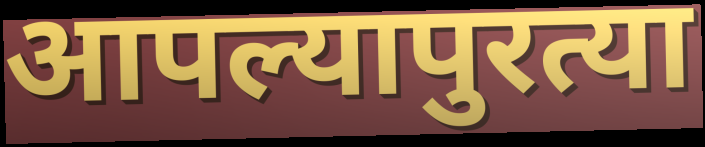
आपल्यापुरत्या